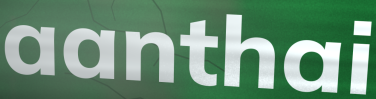
aanthai